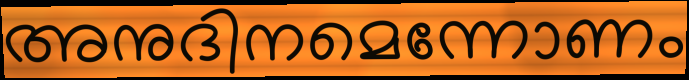
അനുദിനമെന്നോണം